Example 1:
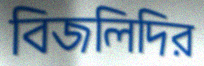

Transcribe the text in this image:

বিজলিদির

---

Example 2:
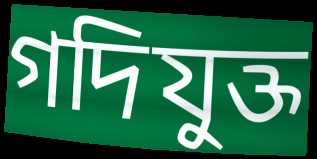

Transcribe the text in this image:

গদিযুক্ত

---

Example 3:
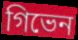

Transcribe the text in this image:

গিভেন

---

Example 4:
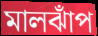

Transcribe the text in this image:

মালঝাঁপ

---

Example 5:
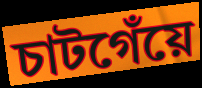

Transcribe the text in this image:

চাটগেঁয়ে